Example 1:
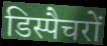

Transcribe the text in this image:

डिस्पैचरों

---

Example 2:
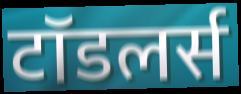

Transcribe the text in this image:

टॉडलर्स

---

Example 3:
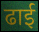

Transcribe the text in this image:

ढाई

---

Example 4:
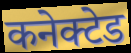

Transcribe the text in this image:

कनेक्टेड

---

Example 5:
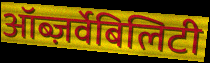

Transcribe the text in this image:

ऑब्ज़र्वेबिलिटी